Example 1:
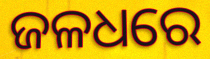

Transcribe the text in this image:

ଜଳଧରେ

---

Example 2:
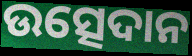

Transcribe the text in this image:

ଉତ୍ସେଦାନ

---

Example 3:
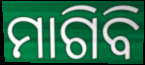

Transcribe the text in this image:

ମାଗିବି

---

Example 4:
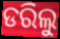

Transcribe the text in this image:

ଡରିଲୁ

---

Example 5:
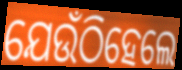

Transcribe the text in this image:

ଯେଉଁଠିହେଲେ